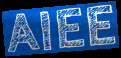
AIEE